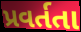
પ્રવર્તતા